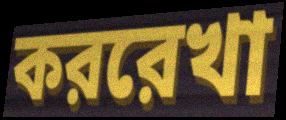
কররেখা